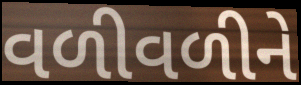
વળીવળીને